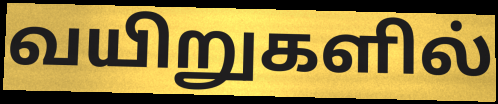
வயிறுகளில்